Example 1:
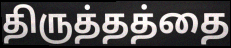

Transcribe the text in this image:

திருத்தத்தை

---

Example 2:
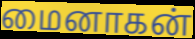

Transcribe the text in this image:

மைனாகன்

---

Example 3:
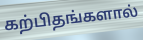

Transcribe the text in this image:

கற்பிதங்களால்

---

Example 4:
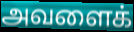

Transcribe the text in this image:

அவளைக்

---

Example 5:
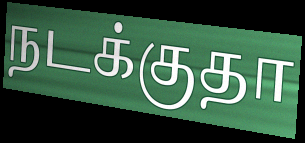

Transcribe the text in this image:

நடக்குதா